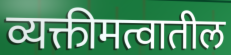
व्यक्तीमत्वातील